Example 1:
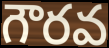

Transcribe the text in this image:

గౌరవ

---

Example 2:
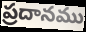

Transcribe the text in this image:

ప్రదానము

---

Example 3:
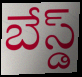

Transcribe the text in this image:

బేస్డ్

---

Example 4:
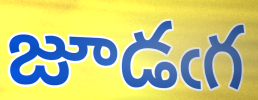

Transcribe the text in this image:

జూడఁగ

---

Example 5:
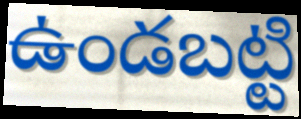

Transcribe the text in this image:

ఉండబట్టి